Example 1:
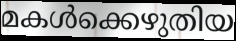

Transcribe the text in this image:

മകൾക്കെഴുതിയ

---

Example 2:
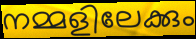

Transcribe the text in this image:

നമ്മളിലേക്കും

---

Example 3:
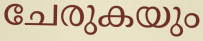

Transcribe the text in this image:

ചേരുകയും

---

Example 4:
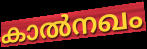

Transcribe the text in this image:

കാൽനഖം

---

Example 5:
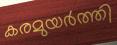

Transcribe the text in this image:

കരമുയർത്തി